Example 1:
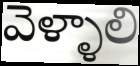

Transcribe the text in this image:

వెళ్ళాలి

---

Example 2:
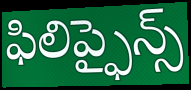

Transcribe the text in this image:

ఫిలిప్ఫైన్స్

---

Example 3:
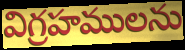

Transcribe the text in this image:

విగ్రహములను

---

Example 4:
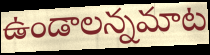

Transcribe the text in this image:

ఉండాలన్నమాట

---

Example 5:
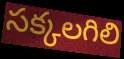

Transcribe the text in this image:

సక్కలగిలి